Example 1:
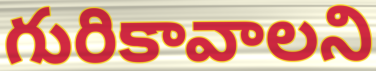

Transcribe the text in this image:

గురికావాలని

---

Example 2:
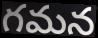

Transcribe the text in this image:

గమన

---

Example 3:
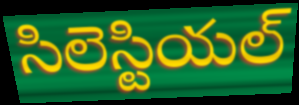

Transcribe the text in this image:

సిలెస్టియల్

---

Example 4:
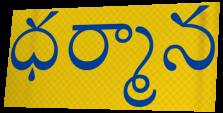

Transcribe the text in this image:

ధర్మాన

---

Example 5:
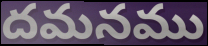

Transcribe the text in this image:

దమనము